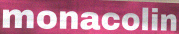
monacolin